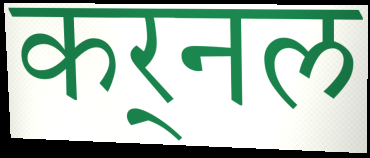
कर्नल